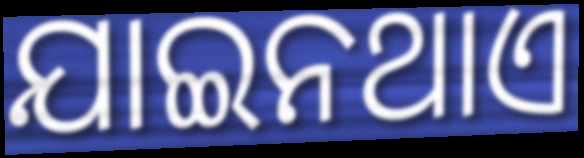
ଯାଇନଥାଏ